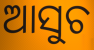
ଆସୁଚ